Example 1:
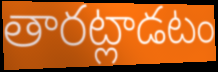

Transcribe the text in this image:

తారట్లాడటం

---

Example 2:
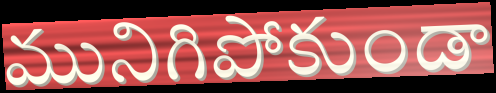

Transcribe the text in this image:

మునిగిపోకుండా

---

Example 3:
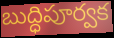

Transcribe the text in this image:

బుద్ధిపూర్వక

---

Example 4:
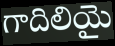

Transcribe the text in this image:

గాదిలియై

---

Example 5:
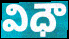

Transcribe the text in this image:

విధౌ